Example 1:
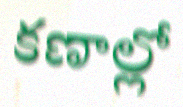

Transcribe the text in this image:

కణాల్లో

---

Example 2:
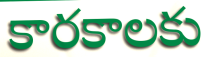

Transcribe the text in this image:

కారకాలకు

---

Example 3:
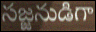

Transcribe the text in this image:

సజ్జనుడిగా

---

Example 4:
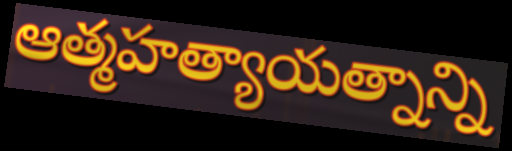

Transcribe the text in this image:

ఆత్మహత్యాయత్నాన్ని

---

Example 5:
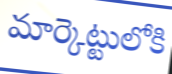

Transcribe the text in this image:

మార్కెట్టులోకి